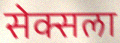
सेक्सला